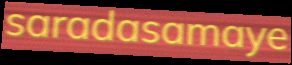
saradasamaye